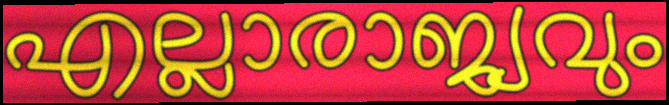
എല്ലാരാജ്യവും